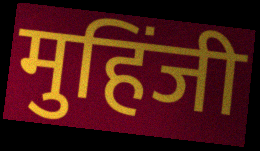
मुहिंजी